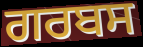
ਗਰਬਸ